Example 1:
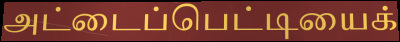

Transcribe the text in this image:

அட்டைப்பெட்டியைக்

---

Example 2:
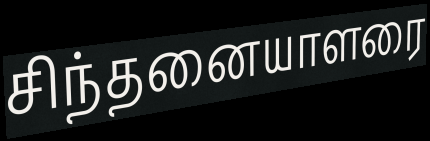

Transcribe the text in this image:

சிந்தனையாளரை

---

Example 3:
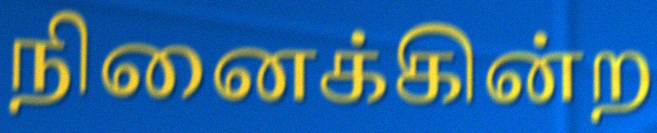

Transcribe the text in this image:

நினைக்கின்ற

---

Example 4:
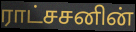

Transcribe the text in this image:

ராட்சசனின்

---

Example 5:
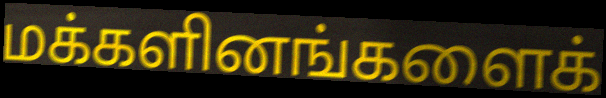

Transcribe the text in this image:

மக்களினங்களைக்